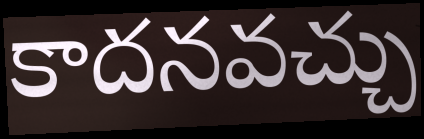
కాదనవచ్చు